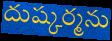
దుష్కర్మను